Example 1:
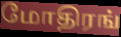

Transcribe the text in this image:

மோதிரங்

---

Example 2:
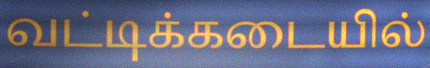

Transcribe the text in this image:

வட்டிக்கடையில்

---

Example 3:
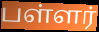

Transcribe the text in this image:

பள்ளர்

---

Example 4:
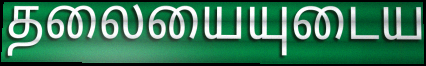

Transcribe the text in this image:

தலையையுடைய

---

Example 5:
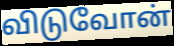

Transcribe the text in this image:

விடுவோன்